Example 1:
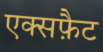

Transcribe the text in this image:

एक्सफ़ैट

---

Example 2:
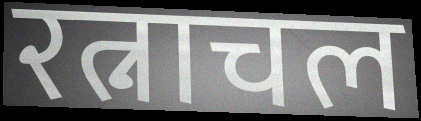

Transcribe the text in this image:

रत्नाचल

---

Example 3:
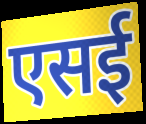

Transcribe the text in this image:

एसई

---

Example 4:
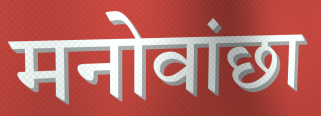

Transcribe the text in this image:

मनोवांछा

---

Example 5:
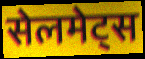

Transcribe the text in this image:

सेलमेट्स